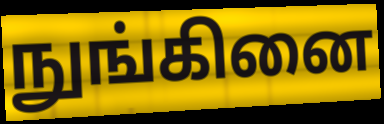
நுங்கினை